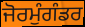
ਜੋਰਮੁੰਗੰਡਰ